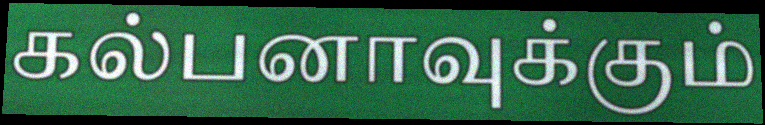
கல்பனாவுக்கும்